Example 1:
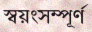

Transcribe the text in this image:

স্বয়ংসম্পূৰ্ণ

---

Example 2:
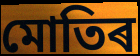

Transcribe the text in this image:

মোতিৰ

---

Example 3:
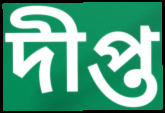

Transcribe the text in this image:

দীপ্ত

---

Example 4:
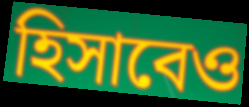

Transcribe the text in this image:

হিসাবেও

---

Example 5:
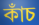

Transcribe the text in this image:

কাঁচ